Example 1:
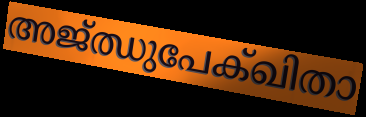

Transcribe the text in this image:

അജ്ഝുപേക്ഖിതാ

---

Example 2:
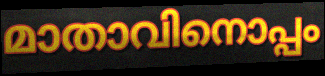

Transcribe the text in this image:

മാതാവിനൊപ്പം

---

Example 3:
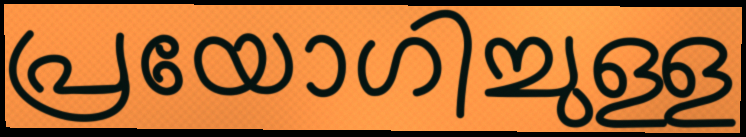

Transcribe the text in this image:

പ്രയോഗിച്ചുള്ള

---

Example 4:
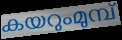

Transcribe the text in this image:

കയറുംമുമ്പ്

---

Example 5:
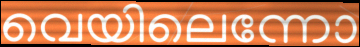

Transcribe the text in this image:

വെയിലെന്നോ